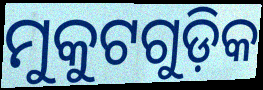
ମୁକୁଟଗୁଡ଼ିକ